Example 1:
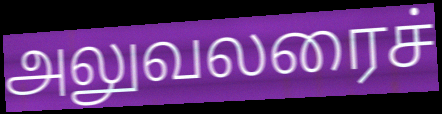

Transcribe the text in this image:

அலுவலரைச்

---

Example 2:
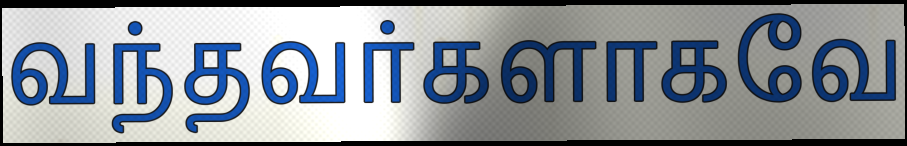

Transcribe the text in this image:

வந்தவர்களாகவே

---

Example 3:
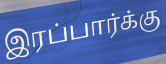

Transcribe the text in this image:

இரப்பார்க்கு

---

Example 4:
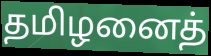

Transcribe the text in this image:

தமிழனைத்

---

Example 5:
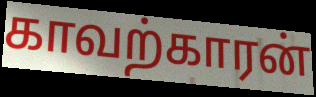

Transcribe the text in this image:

காவற்காரன்